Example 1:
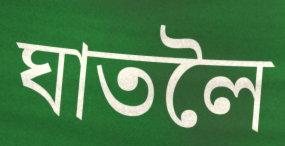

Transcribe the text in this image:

ঘাতলৈ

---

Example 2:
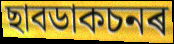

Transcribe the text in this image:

ছাবডাকচনৰ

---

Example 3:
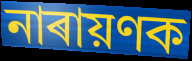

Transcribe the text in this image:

নাৰায়ণক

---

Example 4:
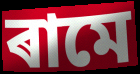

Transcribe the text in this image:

ৰামে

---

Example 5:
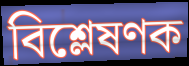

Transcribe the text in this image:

বিশ্লেষণক